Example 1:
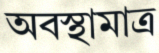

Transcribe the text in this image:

অবস্থামাত্র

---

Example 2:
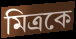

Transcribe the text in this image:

মিত্রকে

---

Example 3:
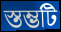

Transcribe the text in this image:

স্তম্ভটি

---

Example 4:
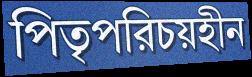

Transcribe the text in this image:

পিতৃপরিচয়হীন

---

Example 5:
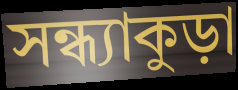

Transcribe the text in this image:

সন্ধ্যাকুড়া